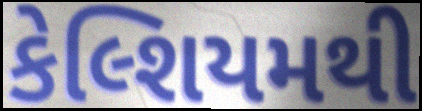
કેલ્શિયમથી